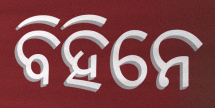
ବିହିନେ